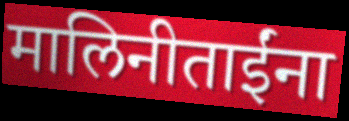
मालिनीताईंना